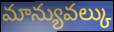
మాన్యువల్కు